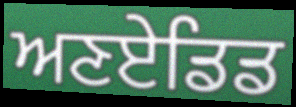
ਅਣਏਡਿਡ